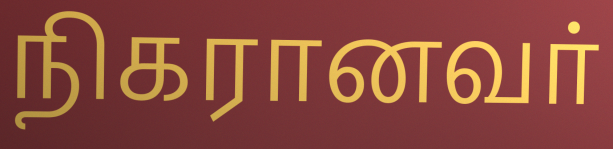
நிகரானவர்